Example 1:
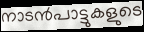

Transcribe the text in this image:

നാടൻപാട്ടുകളുടെ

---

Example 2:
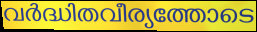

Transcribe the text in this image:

വർദ്ധിതവീര്യത്തോടെ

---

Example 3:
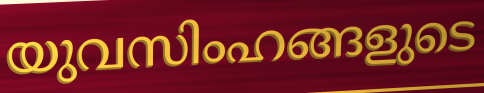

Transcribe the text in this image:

യുവസിംഹങ്ങളുടെ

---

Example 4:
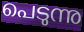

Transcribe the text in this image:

പെടുന്നു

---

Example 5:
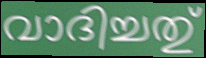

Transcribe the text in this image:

വാദിച്ചതു്